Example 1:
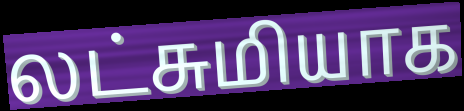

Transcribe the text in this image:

லட்சுமியாக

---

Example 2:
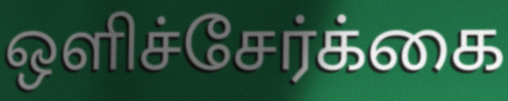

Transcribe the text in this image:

ஒளிச்சேர்க்கை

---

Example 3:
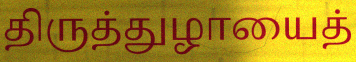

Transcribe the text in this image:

திருத்துழாயைத்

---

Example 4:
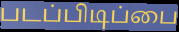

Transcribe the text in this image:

படப்பிடிப்பை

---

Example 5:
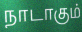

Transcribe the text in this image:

நாடாகும்